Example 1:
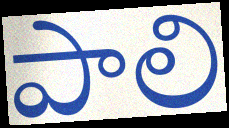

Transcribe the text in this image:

పాలి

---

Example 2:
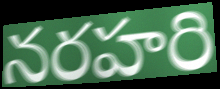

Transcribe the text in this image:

నరహరి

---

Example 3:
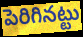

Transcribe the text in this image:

పెరిగినట్టు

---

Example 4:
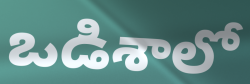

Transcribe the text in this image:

ఒడిశాలో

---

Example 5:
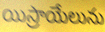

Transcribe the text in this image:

యిస్రాయేలును